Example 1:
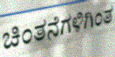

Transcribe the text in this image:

ಚಿಂತನೆಗಳಿಗಿಂತ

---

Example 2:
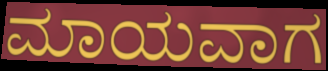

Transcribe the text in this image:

ಮಾಯವಾಗ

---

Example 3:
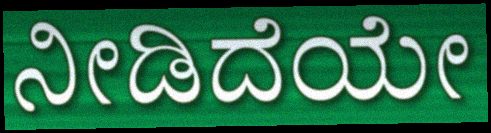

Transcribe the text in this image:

ನೀಡಿದೆಯೇ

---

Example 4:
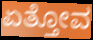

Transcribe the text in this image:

ಏತ್ತೋವ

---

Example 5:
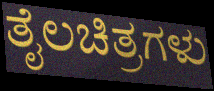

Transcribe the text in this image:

ತೈಲಚಿತ್ರಗಳು